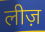
लीज़